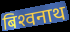
बिश्वनाथ